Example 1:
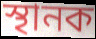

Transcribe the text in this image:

স্থানক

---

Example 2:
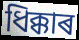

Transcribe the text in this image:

ধিক্কাৰ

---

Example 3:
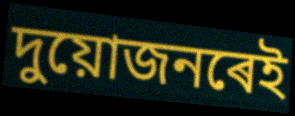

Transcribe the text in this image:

দুয়োজনৰেই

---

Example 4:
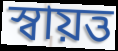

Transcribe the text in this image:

স্বায়ত্ত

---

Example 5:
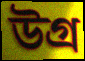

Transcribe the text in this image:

উগ্ৰ